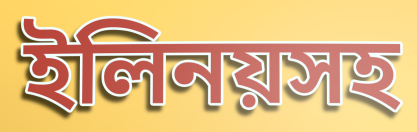
ইলিনয়সহ